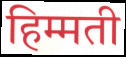
हिम्मती